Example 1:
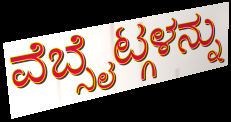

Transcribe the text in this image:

ವೆಬ್ಸೈಟ್ಗಳನ್ನು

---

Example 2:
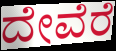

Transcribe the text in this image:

ದೇವೆರೆ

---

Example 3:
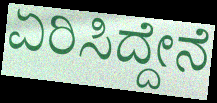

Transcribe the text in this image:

ಏರಿಸಿದ್ದೇನೆ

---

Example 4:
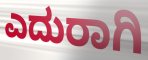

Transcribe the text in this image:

ಎದುರಾಗಿ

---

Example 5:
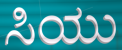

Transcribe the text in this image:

ಸಿಯು